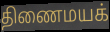
திணைமயக்